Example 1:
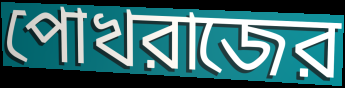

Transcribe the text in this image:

পোখরাজের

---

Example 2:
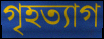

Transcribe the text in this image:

গৃহত্যাগ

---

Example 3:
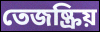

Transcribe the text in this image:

তেজষ্ক্রিয়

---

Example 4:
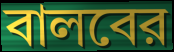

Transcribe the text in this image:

বালবের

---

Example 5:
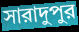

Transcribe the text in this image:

সারাদুপুর